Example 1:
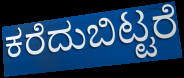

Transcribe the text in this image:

ಕರೆದುಬಿಟ್ಟರೆ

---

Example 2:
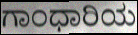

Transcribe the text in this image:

ಗಾಂಧಾರಿಯ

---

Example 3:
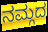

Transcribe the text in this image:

ನಮ್ಗದ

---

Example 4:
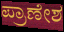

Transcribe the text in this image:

ಪ್ರಾಣೇಶ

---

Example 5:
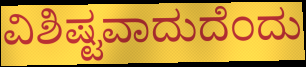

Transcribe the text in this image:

ವಿಶಿಷ್ಟವಾದುದೆಂದು